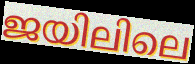
ജയിലിലെ